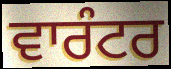
ਵਾਰੰਟਰ